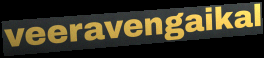
veeravengaikal